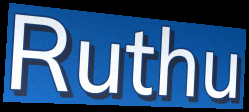
Ruthu